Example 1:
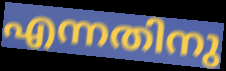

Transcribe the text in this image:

എന്നതിനു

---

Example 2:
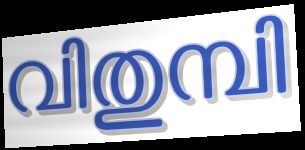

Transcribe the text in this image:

വിതുമ്പി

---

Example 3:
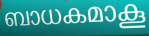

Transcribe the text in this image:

ബാധകമാകൂ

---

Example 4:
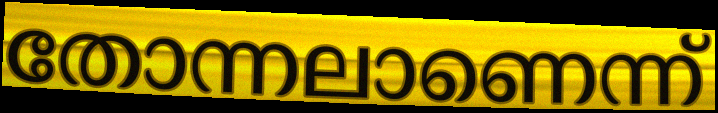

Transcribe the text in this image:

തോന്നലാണെന്ന്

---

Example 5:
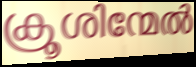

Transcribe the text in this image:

ക്രൂശിന്മേൽ